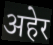
अहेर